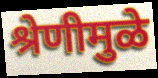
श्रेणीमुळे